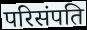
परिसंपति